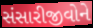
સંસારીજીવોને